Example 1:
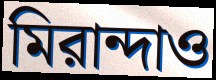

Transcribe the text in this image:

মিরান্দাও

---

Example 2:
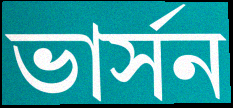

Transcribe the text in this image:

ভার্সন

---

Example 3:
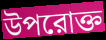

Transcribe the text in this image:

উপরোক্ত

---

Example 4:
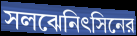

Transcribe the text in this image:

সলঝেনিৎসিনের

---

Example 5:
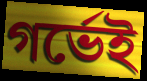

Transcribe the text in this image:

গর্ভেই